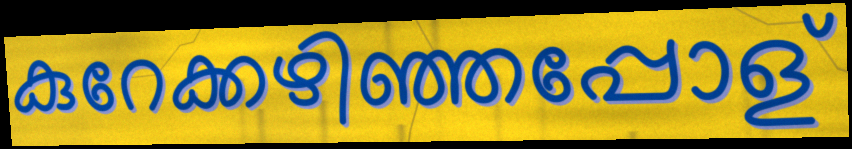
കുറേക്കഴിഞ്ഞപ്പോള്